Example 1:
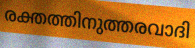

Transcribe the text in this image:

രക്തത്തിനുത്തരവാദി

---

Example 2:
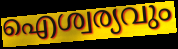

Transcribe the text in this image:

ഐശ്വര്യവും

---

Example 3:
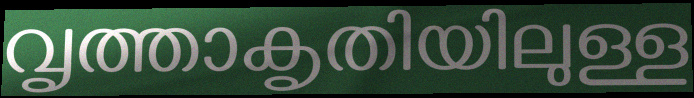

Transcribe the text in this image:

വൃത്താകൃതിയിലുള്ള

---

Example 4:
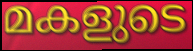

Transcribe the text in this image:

മകളുടെ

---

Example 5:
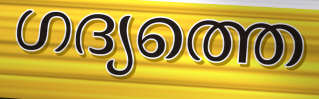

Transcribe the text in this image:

ഗദ്യത്തെ